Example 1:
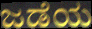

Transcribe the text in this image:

ಜಡೆಯ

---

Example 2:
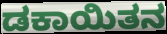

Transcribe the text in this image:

ಡಕಾಯಿತನ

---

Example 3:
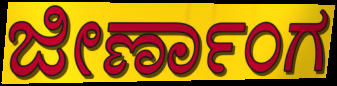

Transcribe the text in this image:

ಜೀರ್ಣಾಂಗ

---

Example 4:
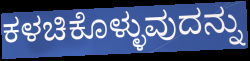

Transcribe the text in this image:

ಕಳಚಿಕೊಳ್ಳುವುದನ್ನು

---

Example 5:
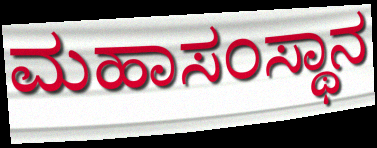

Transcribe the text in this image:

ಮಹಾಸಂಸ್ಥಾನ